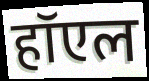
हॉएल